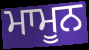
ਮਾਮੂਨ